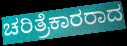
ಚರಿತ್ರೆಕಾರರಾದ